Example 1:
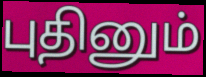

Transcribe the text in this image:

புதினும்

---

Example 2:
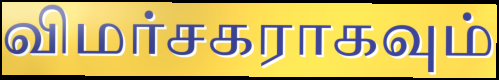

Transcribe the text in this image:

விமர்சகராகவும்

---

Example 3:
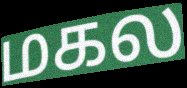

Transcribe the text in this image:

மகல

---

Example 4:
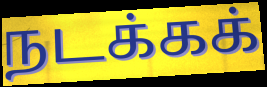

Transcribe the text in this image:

நடக்கக்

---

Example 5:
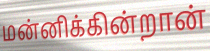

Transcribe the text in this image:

மன்னிக்கின்றான்